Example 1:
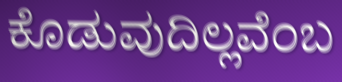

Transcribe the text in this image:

ಕೊಡುವುದಿಲ್ಲವೆಂಬ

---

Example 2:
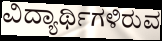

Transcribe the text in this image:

ವಿದ್ಯಾರ್ಥಿಗಳಿರುವ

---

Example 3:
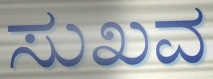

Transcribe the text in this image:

ಸುಖವ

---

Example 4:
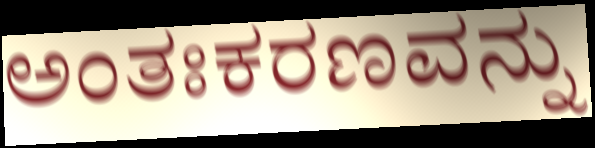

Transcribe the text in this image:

ಅಂತಃಕರಣವನ್ನು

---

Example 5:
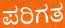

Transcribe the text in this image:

ಪರಿಗತ